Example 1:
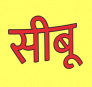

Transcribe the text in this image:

सीबू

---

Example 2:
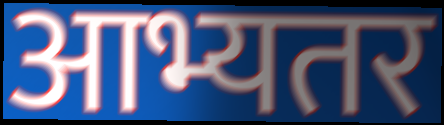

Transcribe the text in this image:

आभ्यतर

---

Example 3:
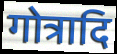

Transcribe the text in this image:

गोत्रादि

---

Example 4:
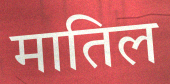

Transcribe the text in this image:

मातिल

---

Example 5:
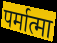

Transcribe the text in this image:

पर्मात्मा